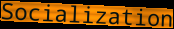
Socialization